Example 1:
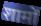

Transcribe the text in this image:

शामों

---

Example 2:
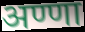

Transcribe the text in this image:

अण्णा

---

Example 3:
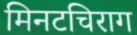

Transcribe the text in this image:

मिनटचिराग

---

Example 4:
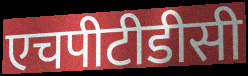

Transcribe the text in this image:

एचपीटीडीसी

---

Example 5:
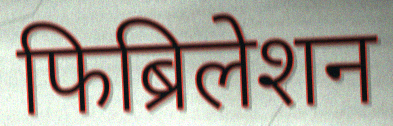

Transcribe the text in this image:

फिब्रिलेशन